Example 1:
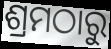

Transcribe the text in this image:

ଶ୍ରମଠାରୁ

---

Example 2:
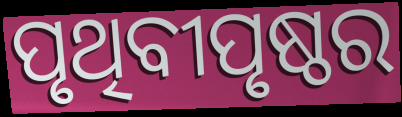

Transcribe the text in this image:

ପୃଥିବୀପୃଷ୍ଠର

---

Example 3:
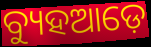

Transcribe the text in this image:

ବ୍ୟୁହଆଡ଼େ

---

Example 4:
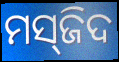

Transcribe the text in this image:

ମସ୍‌ଜିଦ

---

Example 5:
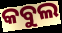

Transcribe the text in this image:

କବୁଲ